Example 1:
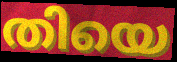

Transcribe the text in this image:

തിയെ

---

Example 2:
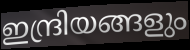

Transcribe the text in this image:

ഇന്ദ്രിയങ്ങളും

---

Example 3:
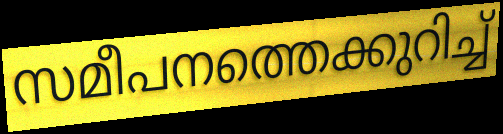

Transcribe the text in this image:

സമീപനത്തെക്കുറിച്ച്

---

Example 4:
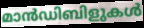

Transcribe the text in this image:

മാൻഡിബിളുകൾ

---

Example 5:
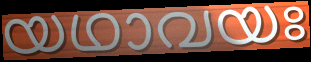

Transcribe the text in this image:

യഥാവയഃ